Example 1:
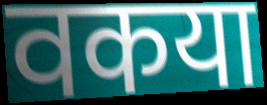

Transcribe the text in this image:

वकया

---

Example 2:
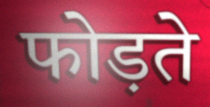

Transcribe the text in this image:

फोड़ते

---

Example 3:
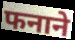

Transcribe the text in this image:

फनाने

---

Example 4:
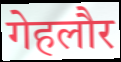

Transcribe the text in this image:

गेहलौर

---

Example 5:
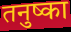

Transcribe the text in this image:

तनुष्का